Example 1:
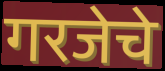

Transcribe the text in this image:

गरजेचे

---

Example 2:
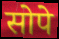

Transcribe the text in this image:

सोपे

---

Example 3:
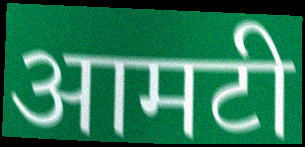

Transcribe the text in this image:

आमटी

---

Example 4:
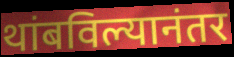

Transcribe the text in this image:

थांबविल्यानंतर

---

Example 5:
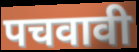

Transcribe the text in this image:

पचवावी